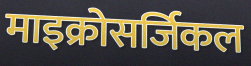
माइक्रोसर्जिकल